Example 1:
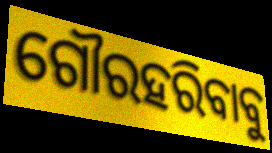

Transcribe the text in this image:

ଗୌରହରିବାବୁ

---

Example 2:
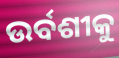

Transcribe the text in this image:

ଉର୍ବଶୀକୁ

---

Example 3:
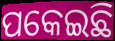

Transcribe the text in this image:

ପକେଇଛି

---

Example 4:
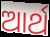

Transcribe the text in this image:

ଆର୍ଥ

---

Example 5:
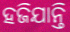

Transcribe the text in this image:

ହଜିଯାନ୍ତି